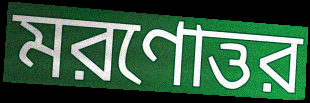
মরণোত্তর